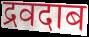
द्रवदाब